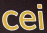
cei